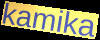
kamika